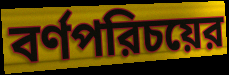
বর্ণপরিচয়ের